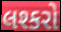
લશ્કરો